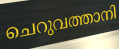
ചെറുവത്താനി